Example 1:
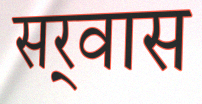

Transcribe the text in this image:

सर्वास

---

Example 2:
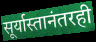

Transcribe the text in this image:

सूर्यास्तानंतरही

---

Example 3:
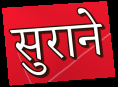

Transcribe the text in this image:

सुराने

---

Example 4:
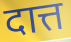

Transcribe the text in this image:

दात्त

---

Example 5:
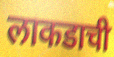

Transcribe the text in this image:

लाकडाची